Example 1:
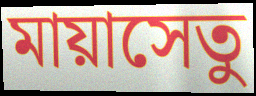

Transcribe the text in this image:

মায়াসেতু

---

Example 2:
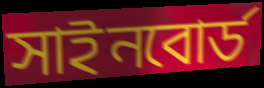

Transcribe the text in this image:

সাইনবোর্ড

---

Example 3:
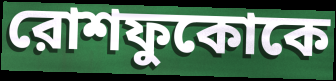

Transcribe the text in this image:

রোশফুকোকে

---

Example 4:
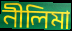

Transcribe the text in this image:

নীলিমা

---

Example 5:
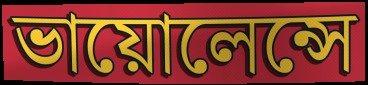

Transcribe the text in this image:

ভায়োলেন্সে